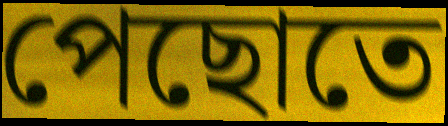
পেছোতে